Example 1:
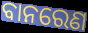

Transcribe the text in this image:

ବାନରେଣ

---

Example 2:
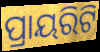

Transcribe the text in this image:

ପ୍ରାୟରିଟି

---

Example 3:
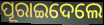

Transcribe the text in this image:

ପୂରାଇଦେଲେ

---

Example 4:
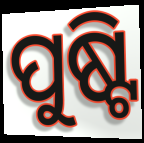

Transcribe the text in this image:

ପୁଷ୍ଟି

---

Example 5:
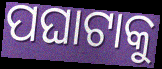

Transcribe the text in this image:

ପଘାଟାକୁ